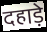
दहाड़े